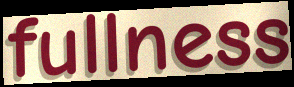
fullness